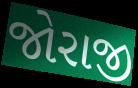
જોરાજી